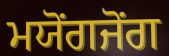
ਮਯੋਂਗਜੋਂਗ